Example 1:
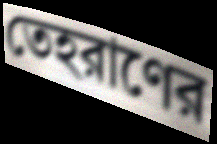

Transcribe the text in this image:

তেহরাণের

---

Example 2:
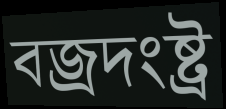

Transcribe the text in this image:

বজ্রদংষ্ট্র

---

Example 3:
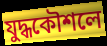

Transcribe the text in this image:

যুদ্ধকৌশলে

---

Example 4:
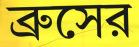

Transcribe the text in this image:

ব্রুসের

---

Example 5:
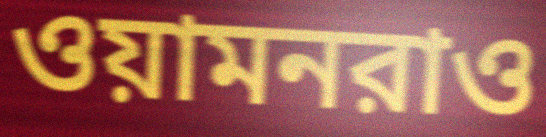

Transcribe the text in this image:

ওয়ামনরাও